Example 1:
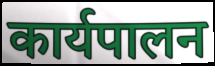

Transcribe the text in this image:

कार्यपालन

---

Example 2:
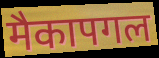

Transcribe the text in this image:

मैकापगल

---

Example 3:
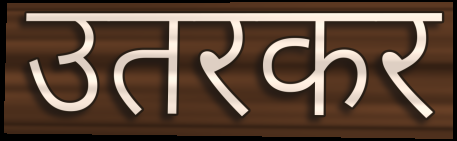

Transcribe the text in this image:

उतरकर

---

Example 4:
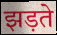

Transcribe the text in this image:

झड़ते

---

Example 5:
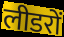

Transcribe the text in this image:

लीडरों